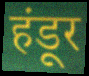
हंडूर